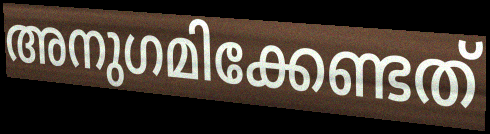
അനുഗമിക്കേണ്ടത്